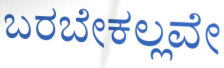
ಬರಬೇಕಲ್ಲವೇ